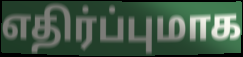
எதிர்ப்புமாக